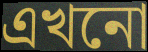
এখনো